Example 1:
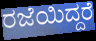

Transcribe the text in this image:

ರಜೆಯಿದ್ದರೆ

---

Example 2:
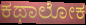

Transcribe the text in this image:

ಕಥಾಲೋಕ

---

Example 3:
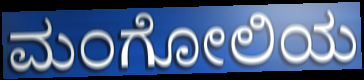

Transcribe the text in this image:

ಮಂಗೋಲಿಯ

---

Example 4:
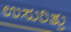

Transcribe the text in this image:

ಉಸುರಿತ್ತು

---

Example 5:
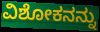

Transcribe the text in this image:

ವಿಶೋಕನನ್ನು